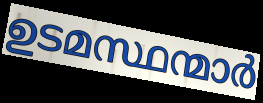
ഉടമസ്ഥന്മാർ